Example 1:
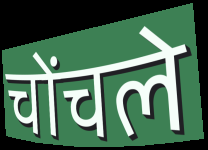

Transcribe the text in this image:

चोंचले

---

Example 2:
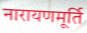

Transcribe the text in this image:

नारायणमूर्ति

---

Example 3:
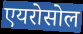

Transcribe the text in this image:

एयरोसोल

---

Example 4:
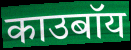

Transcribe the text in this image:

काउबॉय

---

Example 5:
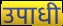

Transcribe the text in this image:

उपाधी